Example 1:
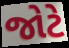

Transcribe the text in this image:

જોટે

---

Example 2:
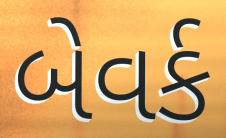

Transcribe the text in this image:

બેવર્ક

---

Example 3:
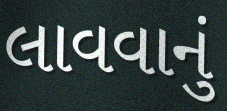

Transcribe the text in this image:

લાવવાનું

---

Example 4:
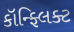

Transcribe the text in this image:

કૉન્ફ્લિક્ટ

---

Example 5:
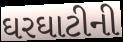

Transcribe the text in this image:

ઘરઘાટીની